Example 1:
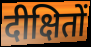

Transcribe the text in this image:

दीक्षितों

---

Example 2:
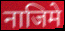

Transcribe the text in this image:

नाजिमे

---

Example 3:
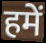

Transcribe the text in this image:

हमें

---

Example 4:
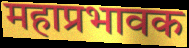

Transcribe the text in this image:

महाप्रभावक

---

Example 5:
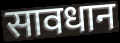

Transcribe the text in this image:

सावधान